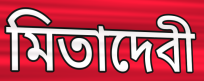
মিতাদেবী